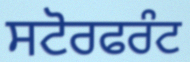
ਸਟੋਰਫਰੰਟ